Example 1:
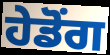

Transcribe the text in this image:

ਹੇਡੋਂਗ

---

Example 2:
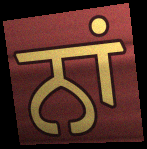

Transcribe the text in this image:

ਨਾਂ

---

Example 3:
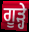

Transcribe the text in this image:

ਗੂੜ੍ਹੇ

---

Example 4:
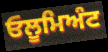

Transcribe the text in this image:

ਓਲੂਮਿਅੰਟ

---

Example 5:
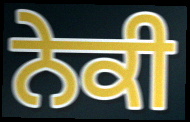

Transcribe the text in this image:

ਨੇਕੀ